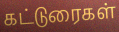
கட்டுரைகள்